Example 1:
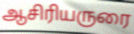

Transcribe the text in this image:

ஆசிரியருரை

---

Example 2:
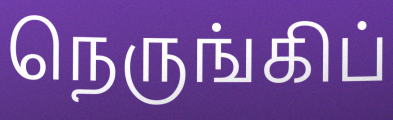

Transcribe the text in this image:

நெருங்கிப்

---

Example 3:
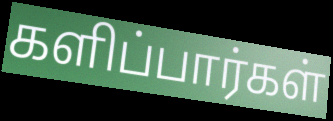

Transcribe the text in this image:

களிப்பார்கள்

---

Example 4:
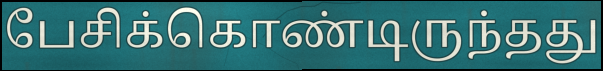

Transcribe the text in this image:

பேசிக்கொண்டிருந்தது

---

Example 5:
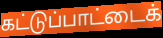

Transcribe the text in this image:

கட்டுப்பாட்டைக்